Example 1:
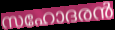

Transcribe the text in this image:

സഹോദരൻ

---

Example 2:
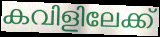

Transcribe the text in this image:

കവിളിലേക്ക്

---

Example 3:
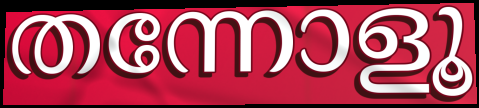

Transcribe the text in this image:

തന്നോളൂ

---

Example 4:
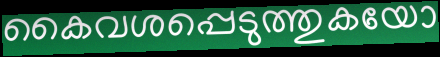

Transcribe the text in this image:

കൈവശപ്പെടുത്തുകയോ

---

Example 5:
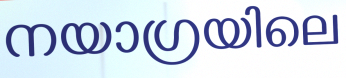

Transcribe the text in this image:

നയാഗ്രയിലെ